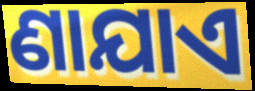
ଣାଯାଏ